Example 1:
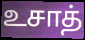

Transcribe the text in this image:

உசாத்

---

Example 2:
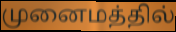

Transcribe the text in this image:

முனைமத்தில்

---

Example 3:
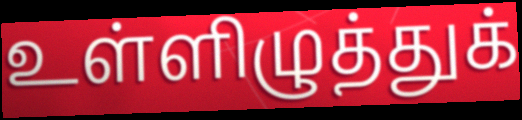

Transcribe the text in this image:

உள்ளிழுத்துக்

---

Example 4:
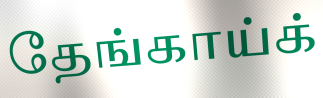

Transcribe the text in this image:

தேங்காய்க்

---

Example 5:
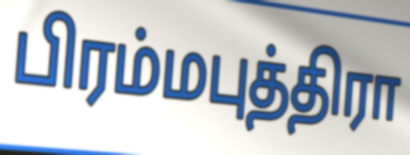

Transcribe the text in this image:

பிரம்மபுத்திரா